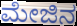
ಮೇಜಿನ